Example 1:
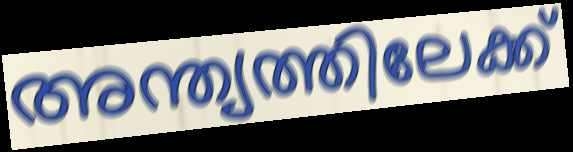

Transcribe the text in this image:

അന്ത്യത്തിലേക്ക്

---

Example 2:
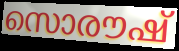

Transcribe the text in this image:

സൊരൗഷ്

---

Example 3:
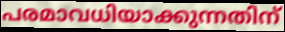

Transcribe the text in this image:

പരമാവധിയാക്കുന്നതിന്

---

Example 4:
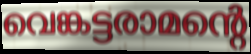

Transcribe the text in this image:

വെങ്കട്ടരാമന്റെ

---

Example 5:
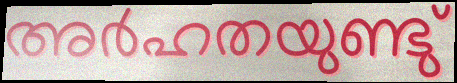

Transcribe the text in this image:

അർഹതയുണ്ടു്